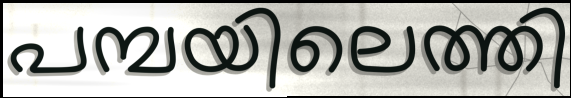
പമ്പയിലെത്തി